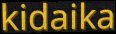
kidaika